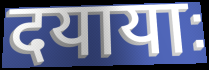
दयायाः